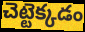
చెట్టెక్కడం